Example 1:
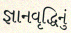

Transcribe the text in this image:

જ્ઞાનવૃદ્ધિનું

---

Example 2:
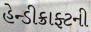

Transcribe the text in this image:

હેન્ડીક્રાફ્ટની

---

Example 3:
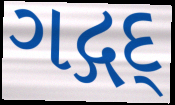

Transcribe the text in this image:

ગદ્ગદ્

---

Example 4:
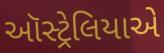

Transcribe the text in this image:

ઑસ્ટ્રેલિયાએ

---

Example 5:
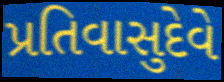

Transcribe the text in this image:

પ્રતિવાસુદેવે